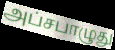
அப்சபாழுது